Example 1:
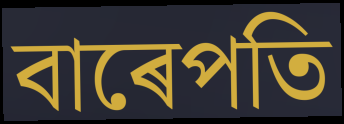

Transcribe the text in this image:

বাৰেপতি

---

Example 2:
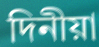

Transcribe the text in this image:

দিনীয়া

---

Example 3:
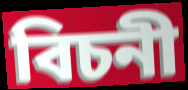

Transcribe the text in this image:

বিচনী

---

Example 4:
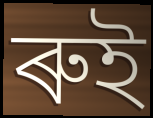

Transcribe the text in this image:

ৰুই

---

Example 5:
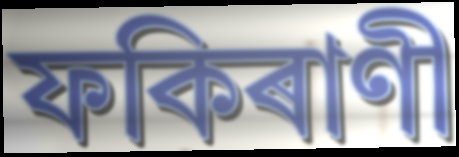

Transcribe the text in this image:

ফকিৰাণী